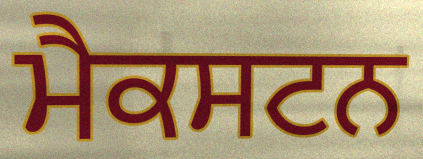
ਮੈਕਸਟਨ